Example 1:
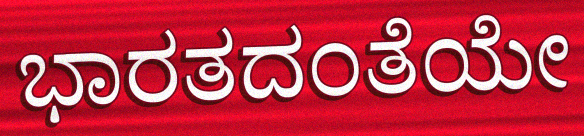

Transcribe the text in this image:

ಭಾರತದಂತೆಯೇ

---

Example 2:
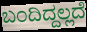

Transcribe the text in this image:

ಬಂದಿದ್ದಲ್ಲದೆ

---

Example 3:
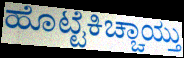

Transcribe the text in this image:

ಹೊಟ್ಟೆಕಿಚ್ಚಾಯ್ತು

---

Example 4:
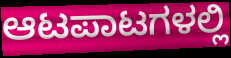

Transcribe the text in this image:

ಆಟಪಾಟಗಳಲ್ಲಿ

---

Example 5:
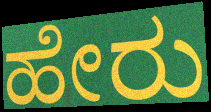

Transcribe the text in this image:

ಹೇರು